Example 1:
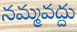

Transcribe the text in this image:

నమ్మవద్దు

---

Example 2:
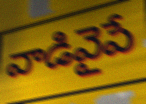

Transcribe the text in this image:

వాడివైపే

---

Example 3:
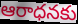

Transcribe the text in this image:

ఆరాధనకు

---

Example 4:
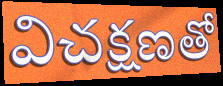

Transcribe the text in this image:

విచక్షణతో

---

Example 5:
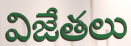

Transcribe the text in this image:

విజేతలు